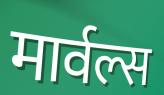
मार्वल्स